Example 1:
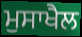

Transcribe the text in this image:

ਮੁਸਾਖੈਲ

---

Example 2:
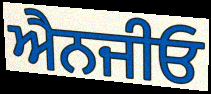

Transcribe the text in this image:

ਐਨਜੀਓ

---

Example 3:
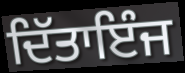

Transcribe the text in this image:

ਦਿੱਤਾਇੰਜ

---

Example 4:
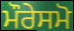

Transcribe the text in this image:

ਮੌਰੇਸਮੋ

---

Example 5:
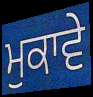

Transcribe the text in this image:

ਮੁਕਾਵੇ